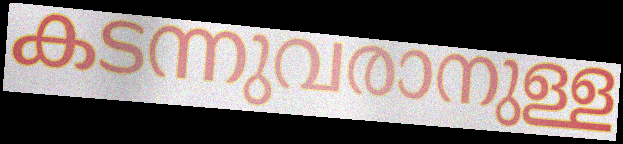
കടന്നുവരാനുള്ള